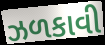
ઝળકાવી